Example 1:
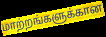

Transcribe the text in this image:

மாற்றங்களுக்கான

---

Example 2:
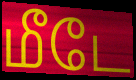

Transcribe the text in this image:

மீடே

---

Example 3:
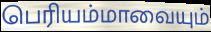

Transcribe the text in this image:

பெரியம்மாவையும்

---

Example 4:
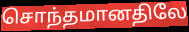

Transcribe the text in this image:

சொந்தமானதிலே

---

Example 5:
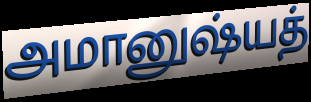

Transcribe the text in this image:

அமானுஷ்யத்